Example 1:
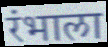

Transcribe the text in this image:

रंभाला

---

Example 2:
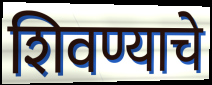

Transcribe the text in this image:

शिवण्याचे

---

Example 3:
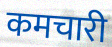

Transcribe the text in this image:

कमचारी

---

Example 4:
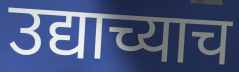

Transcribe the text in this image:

उद्याच्याच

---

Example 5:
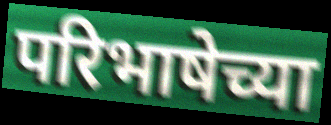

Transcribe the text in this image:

परिभाषेच्या